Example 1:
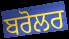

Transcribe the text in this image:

ਬਰੋਲਰ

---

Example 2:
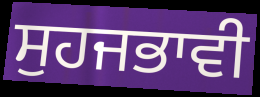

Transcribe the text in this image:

ਸੁਹਜਭਾਵੀ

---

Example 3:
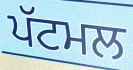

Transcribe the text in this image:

ਪੱਟਮਲ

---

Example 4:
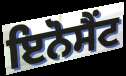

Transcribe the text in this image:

ਇਨੋਸੈਂਟ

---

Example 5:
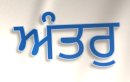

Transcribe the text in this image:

ਅੰਤਰੁ